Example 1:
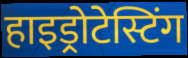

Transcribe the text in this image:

हाइड्रोटेस्टिंग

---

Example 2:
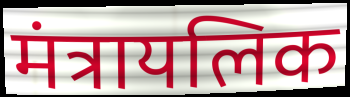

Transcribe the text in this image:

मंत्रायलिक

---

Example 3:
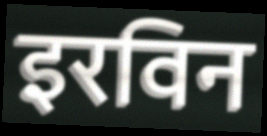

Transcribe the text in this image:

इरविन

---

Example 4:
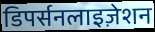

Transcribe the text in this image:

डिपर्सनलाइज़ेशन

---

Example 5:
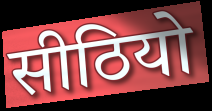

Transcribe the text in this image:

सीठियो